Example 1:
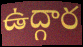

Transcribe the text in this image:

ఉద్గార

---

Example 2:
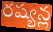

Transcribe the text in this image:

రష్యన్ల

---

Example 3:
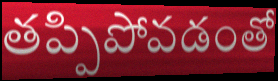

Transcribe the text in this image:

తప్పిపోవడంతో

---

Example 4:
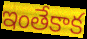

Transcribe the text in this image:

ఇంతేకాక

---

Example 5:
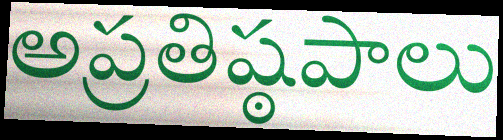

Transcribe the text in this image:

అప్రతిష్ఠపాలు